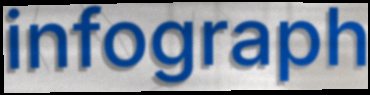
infograph